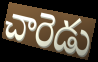
చారెడు